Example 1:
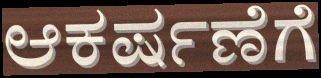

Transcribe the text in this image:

ಆಕರ್ಷಣೆಗೆ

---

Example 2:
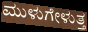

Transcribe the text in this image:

ಮುಳುಗೇಳುತ್ತ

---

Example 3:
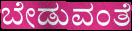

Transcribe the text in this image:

ಬೇಡುವಂತೆ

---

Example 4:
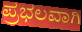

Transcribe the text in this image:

ಪ್ರಭಲವಾಗಿ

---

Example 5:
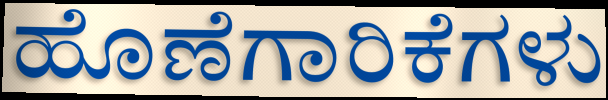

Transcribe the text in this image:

ಹೊಣೆಗಾರಿಕೆಗಳು